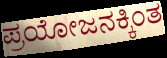
ಪ್ರಯೋಜನಕ್ಕಿಂತ